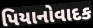
પિયાનોવાદક